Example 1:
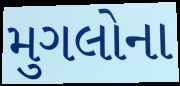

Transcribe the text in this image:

મુગલોના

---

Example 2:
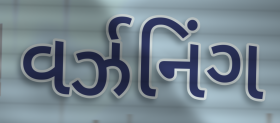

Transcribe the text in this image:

વર્ઝનિંગ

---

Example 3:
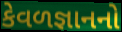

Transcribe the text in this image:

કેવળજ્ઞાનનો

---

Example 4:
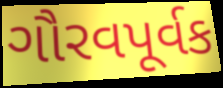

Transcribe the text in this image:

ગૌરવપૂર્વક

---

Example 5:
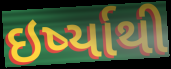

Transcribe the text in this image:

ઇર્ષ્યાથી